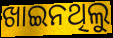
ଖାଇନଥିଲୁ